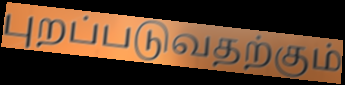
புறப்படுவதற்கும்